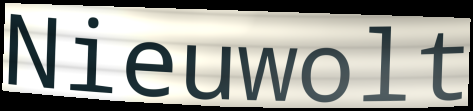
Nieuwolt